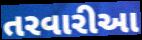
તરવારીઆ